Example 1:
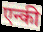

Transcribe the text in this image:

एन्की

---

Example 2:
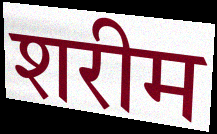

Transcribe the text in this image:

शरीम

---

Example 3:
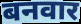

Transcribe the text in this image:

बनवार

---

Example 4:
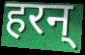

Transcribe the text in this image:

हरन्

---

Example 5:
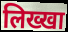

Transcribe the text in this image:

लिख्खा